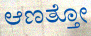
ಆಣತ್ತೋ